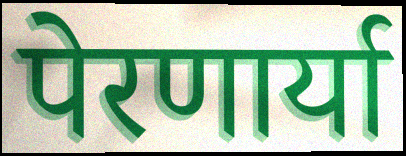
पेरणार्या